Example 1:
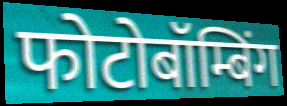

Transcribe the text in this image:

फोटोबॉम्बिंग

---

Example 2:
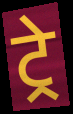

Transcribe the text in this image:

ट्रे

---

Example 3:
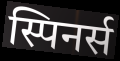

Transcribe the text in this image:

स्पिनर्स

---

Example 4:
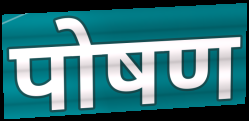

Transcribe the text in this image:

पोषण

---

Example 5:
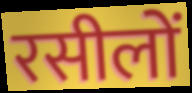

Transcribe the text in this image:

रसीलों